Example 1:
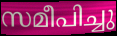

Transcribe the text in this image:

സമീപിച്ചു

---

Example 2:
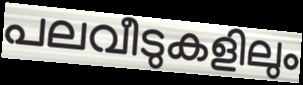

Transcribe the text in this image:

പലവീടുകളിലും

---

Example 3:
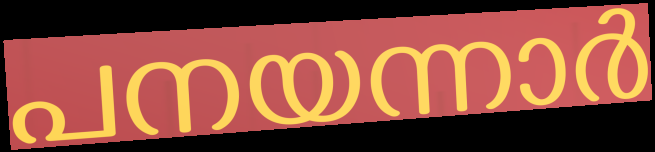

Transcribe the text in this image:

പനയന്നാർ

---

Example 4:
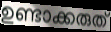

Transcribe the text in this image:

ഉണ്ടാക്കരുത്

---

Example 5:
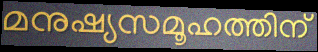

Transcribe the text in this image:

മനുഷ്യസമൂഹത്തിന്